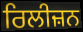
ਰਿਲੀਜ਼ਨ